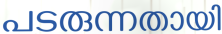
പടരുന്നതായി